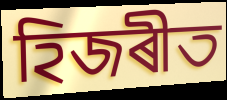
হিজৰীত